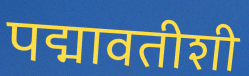
पद्मावतीशी